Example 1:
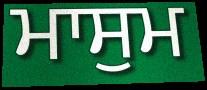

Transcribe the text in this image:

ਮਾਸੁਮ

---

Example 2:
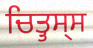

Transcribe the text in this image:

ਚਿਤ੍ਤਸ੍ਸ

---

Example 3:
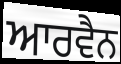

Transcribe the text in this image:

ਆਰਵੈਨ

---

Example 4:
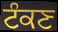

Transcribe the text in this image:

ਟੰਕਣ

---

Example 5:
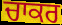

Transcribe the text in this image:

ਚਾਕਰ